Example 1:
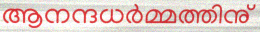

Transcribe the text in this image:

ആനന്ദധർമ്മത്തിനു്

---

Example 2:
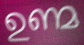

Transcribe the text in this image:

ഉണ്മ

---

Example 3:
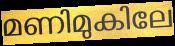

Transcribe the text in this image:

മണിമുകിലേ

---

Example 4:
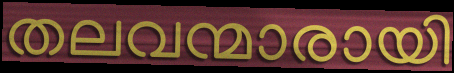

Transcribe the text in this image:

തലവന്മാരായി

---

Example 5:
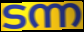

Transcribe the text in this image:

ടന്ന